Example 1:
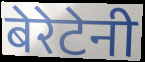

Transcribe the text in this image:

बेरेटेनी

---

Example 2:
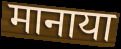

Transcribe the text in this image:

मानाया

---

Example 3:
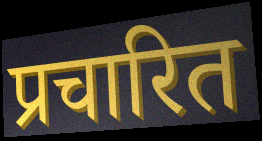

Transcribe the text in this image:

प्रचारित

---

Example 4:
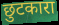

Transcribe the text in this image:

छुटकारा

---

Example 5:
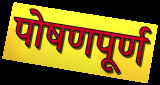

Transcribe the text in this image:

पोषणपूर्ण